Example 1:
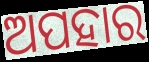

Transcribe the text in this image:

ଅପହାର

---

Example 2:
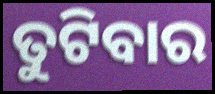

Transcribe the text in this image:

ତୁଟିବାର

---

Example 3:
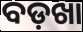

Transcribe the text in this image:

ବଡ଼ଖା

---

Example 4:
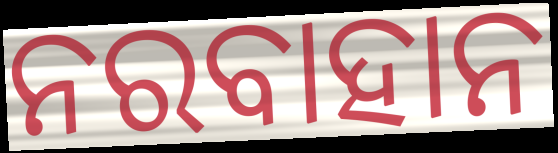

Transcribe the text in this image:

ନରବାହାନ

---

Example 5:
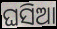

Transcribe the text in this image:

ଘସିଆ